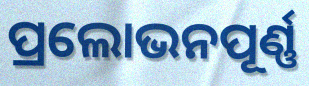
ପ୍ରଲୋଭନପୂର୍ଣ୍ଣ